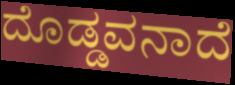
ದೊಡ್ಡವನಾದೆ